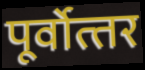
पूर्वोत्‍तर